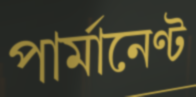
পাৰ্মানেণ্ট